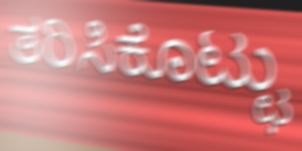
ತರಿಸಿಕೊಟ್ಟು